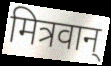
मित्रवान्